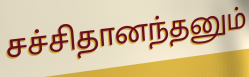
சச்சிதானந்தனும்